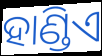
ହାଣ୍ଡିଏ